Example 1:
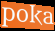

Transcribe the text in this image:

poka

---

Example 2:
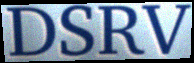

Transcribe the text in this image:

DSRV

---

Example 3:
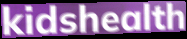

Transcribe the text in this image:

kidshealth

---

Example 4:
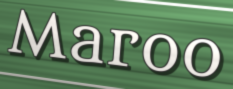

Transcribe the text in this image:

Maroo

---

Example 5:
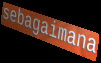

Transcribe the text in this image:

sebagaimana